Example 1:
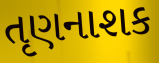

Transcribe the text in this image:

તૃણનાશક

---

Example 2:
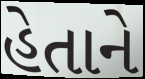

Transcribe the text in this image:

હેતાને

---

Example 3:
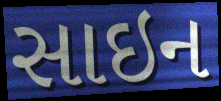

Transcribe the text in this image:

સાઇન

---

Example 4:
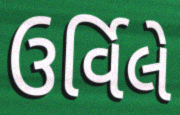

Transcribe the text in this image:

ઉર્વિલે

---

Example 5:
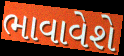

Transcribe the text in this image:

ભાવાવેશે